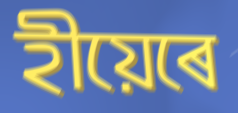
হীয়েৰে